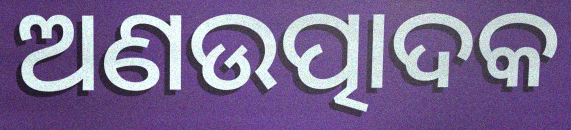
ଅଣଉତ୍ପାଦକ